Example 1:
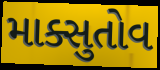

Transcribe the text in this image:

માક્સુતોવ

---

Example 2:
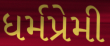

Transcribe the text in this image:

ધર્મપ્રેમી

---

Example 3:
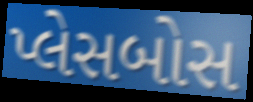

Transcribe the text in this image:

પ્લેસબોસ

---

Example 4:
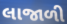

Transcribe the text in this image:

લાજાળી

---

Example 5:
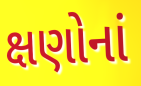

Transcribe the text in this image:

ક્ષણોનાં